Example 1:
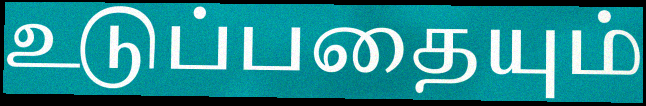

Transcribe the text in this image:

உடுப்பதையும்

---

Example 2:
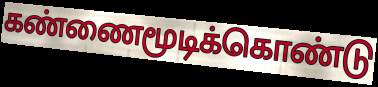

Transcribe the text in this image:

கண்ணைமூடிக்கொண்டு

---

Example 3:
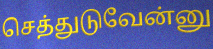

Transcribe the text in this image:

செத்துடுவேன்னு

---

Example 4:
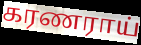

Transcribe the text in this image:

கரணராய்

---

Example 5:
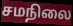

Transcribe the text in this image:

சமநிலை